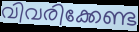
വിവരിക്കേണ്ട